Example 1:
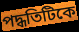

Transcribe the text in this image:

পদ্ধতিটিকে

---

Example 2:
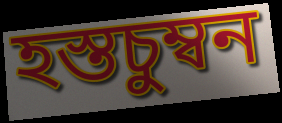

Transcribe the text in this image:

হস্তচুম্বন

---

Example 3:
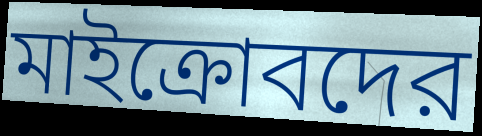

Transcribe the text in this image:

মাইক্রোবদের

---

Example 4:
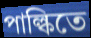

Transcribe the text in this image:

পাল্কিতে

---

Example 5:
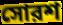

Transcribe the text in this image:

সোরশ